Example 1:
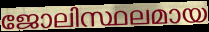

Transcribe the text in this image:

ജോലിസ്ഥലമായ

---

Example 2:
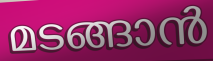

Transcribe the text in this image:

മടങ്ങാൻ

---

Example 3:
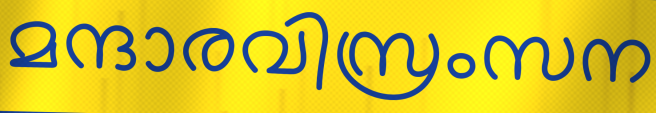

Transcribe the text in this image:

മന്ദാരവിസ്രംസന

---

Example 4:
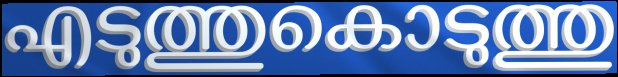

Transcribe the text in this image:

എടുത്തുകൊടുത്തു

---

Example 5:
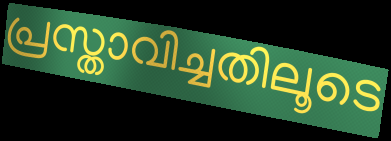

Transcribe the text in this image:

പ്രസ്താവിച്ചതിലൂടെ